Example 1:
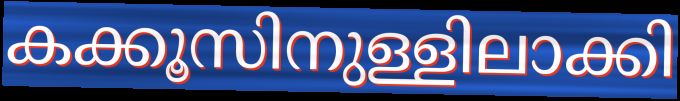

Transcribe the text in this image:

കക്കൂസിനുള്ളിലാക്കി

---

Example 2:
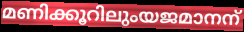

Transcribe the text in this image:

മണിക്കൂറിലുംയജമാനന്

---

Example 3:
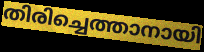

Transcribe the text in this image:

തിരിച്ചെത്താനായി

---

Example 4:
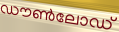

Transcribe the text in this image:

ഡൗൺലോഡ്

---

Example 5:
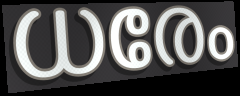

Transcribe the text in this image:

ധരേം